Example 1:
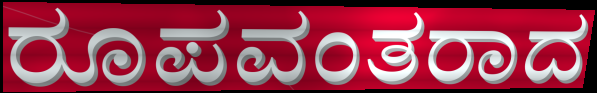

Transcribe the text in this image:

ರೂಪವಂತರಾದ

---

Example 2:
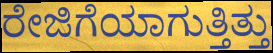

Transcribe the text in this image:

ರೇಜಿಗೆಯಾಗುತ್ತಿತ್ತು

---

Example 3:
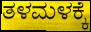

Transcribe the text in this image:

ತಳಮಳಕ್ಕೆ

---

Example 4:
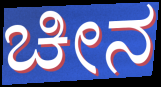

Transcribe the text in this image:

ಚೀನ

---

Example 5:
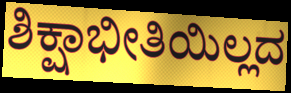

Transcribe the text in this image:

ಶಿಕ್ಷಾಭೀತಿಯಿಲ್ಲದ